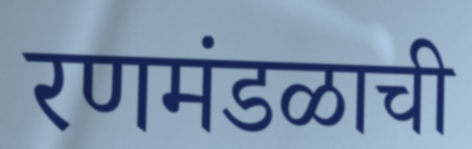
रणमंडळाची